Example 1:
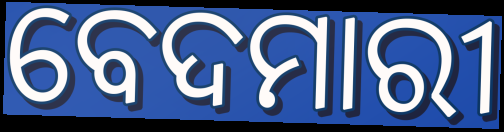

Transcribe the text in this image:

ବେଦମାରୀ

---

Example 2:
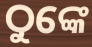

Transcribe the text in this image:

ଠୁଙ୍କେ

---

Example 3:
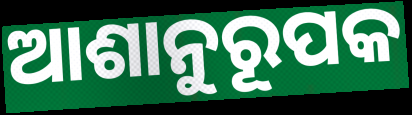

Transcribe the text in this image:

ଆଶାନୁରୂପକ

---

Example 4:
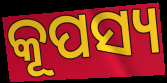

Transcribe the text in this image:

କୂପସ୍ୟ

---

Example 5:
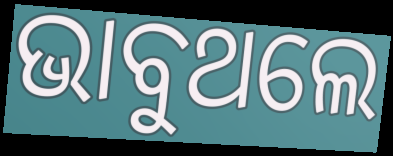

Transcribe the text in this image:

ଭାବୁଥଲେ